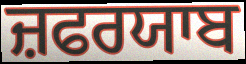
ਜ਼ਫਰਯਾਬ